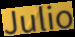
Julio